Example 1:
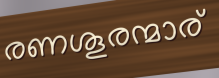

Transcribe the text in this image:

രണശൂരന്മാര്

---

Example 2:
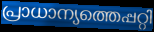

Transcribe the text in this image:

പ്രാധാന്യത്തെപ്പറ്റി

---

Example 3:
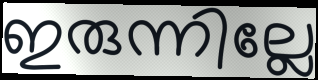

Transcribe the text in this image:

ഇരുന്നില്ലേ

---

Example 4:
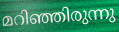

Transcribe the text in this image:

മറിഞ്ഞിരുന്നു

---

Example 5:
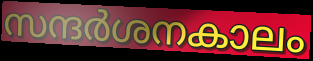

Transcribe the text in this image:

സന്ദർശനകാലം